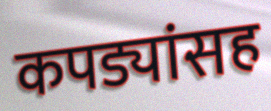
कपड्यांसह